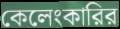
কেলেংকারির